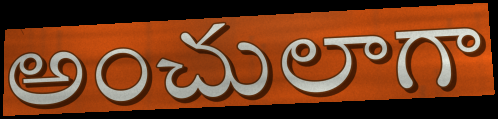
అంచులాగా